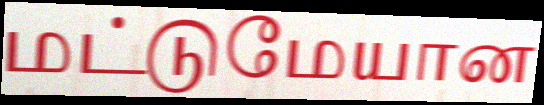
மட்டுமேயான